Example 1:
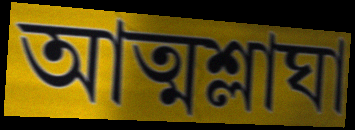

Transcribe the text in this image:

আত্মশ্লাঘা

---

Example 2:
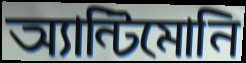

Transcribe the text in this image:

অ্যান্টিমোনি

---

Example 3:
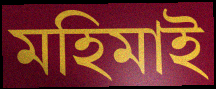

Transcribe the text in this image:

মহিমাই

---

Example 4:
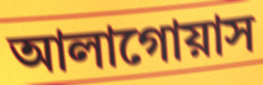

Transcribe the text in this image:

আলাগোয়াস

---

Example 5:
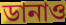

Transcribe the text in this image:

ডানাও